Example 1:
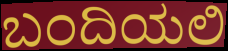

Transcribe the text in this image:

ಬಂದಿಯಲಿ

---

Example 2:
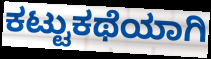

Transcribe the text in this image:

ಕಟ್ಟುಕಥೆಯಾಗಿ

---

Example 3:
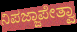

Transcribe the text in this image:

ನಿಪಜ್ಜಾಪೇತ್ವಾ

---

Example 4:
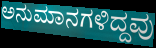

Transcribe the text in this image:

ಅನುಮಾನಗಳಿದ್ದವು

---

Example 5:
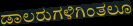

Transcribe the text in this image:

ಡಾಲರುಗಳಿಗಿಂತಲೂ